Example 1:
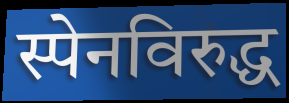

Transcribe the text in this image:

स्पेनविरुद्ध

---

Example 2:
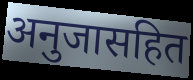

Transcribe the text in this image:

अनुजासहित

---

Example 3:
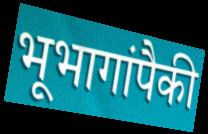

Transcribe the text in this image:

भूभागांपैकी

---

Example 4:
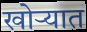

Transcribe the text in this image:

खोऱ्यात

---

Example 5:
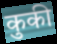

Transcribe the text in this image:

कुकी